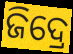
ଜିଦ୍ରେ